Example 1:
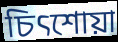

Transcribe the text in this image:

চিৎশোয়া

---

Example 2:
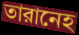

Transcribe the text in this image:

তারানেহ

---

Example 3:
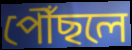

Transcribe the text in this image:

পৌঁছলে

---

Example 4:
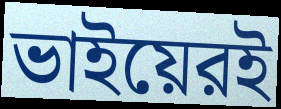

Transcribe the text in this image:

ভাইয়েরই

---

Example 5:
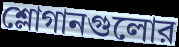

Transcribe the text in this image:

শ্লোগানগুলোর